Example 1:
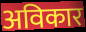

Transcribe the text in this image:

अविकार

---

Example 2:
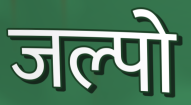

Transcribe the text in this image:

जल्पो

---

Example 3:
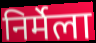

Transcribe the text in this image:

निर्मेला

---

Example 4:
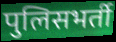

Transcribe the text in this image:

पुलिसभर्ती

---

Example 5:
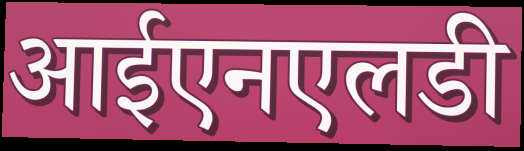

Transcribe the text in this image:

आईएनएलडी